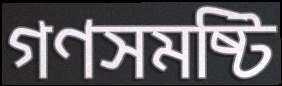
গণসমষ্টি